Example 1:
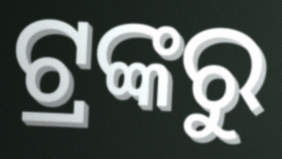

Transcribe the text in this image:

ଟ୍ରଙ୍କରୁ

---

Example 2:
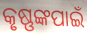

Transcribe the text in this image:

କୃଷ୍ଣଙ୍କପାଇଁ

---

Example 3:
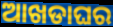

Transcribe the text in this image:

ଆଖଡାଘର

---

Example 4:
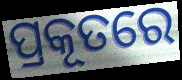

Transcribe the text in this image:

ପ୍ରକୂତରେ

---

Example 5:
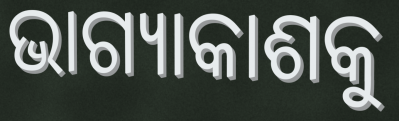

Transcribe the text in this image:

ଭାଗ୍ୟାକାଶକୁ